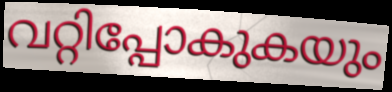
വറ്റിപ്പോകുകയും